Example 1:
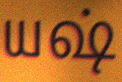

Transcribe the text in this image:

யஷ்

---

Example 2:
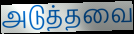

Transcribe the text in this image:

அடுத்தவை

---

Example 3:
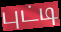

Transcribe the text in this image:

புட்டி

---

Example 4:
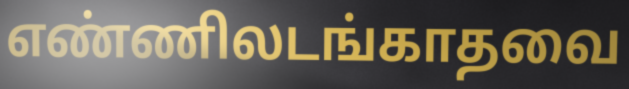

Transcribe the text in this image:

எண்ணிலடங்காதவை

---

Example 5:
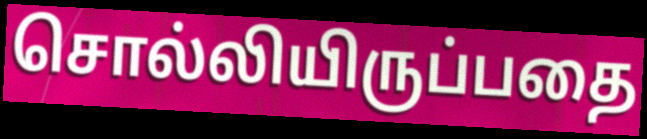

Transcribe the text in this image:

சொல்லியிருப்பதை